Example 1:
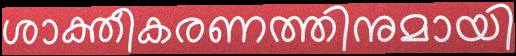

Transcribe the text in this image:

ശാക്തീകരണത്തിനുമായി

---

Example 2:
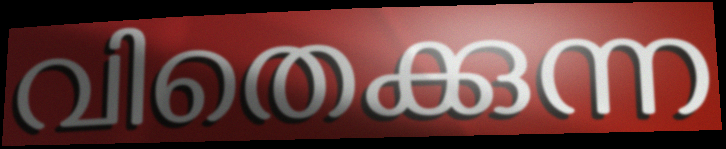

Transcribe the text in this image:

വിതെക്കുന്ന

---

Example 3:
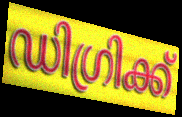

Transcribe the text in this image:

ഡിഗ്രിക്ക്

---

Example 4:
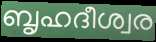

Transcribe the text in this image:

ബൃഹദീശ്വര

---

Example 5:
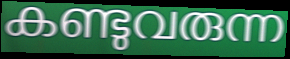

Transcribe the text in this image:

കണ്ടുവരുന്ന